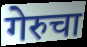
गेरुचा